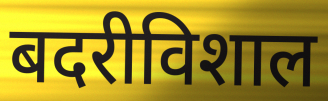
बदरीविशाल